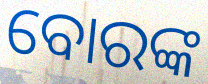
ବୋରଙ୍କ